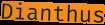
Dianthus